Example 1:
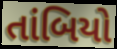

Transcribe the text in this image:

તાંબિયો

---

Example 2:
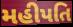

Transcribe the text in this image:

મહીપતિ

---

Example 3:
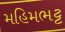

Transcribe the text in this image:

મહિમભટ્ટ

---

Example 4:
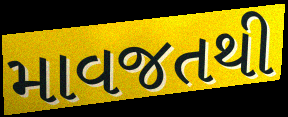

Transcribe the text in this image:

માવજતથી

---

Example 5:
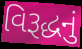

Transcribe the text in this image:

વિરૂદ્ધનું